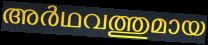
അർഥവത്തുമായ